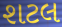
શટલ